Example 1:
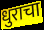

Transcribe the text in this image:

धुराचा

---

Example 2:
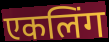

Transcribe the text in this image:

एकलिंग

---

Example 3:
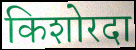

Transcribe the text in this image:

किशोरदा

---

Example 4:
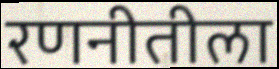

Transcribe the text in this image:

रणनीतीला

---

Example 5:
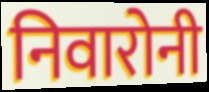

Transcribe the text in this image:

निवारोनी